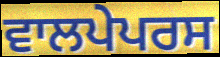
ਵਾਲਪੇਪਰਸ